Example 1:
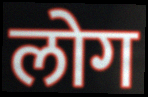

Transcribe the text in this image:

लोग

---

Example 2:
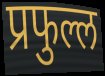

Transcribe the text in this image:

प्रफुल्ल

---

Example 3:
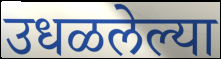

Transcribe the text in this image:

उधळलेल्या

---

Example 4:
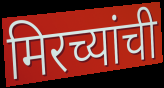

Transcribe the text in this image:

मिरच्यांची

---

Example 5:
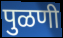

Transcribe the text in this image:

पुळणी